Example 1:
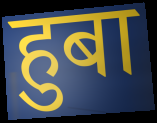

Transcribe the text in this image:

हुबा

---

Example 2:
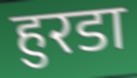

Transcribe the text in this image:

हुरडा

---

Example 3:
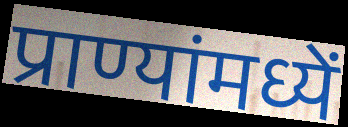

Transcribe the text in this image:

प्राण्यांमध्यें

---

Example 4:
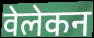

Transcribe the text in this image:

वेलेकन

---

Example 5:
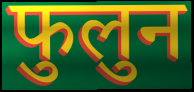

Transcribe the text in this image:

फुलुन